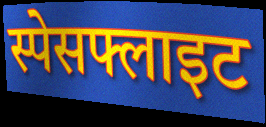
स्पेसफ्लाइट